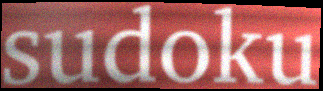
sudoku